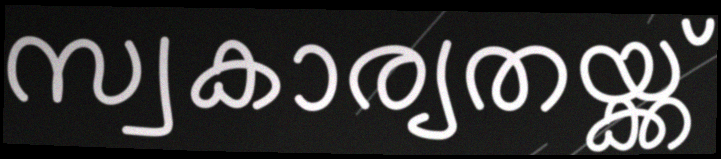
സ്വകാര്യതയ്ക്ക്